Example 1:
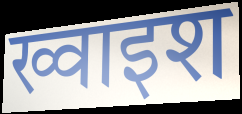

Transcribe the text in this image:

ख्वाइश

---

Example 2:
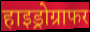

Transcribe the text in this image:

हाइड्रोग्राफर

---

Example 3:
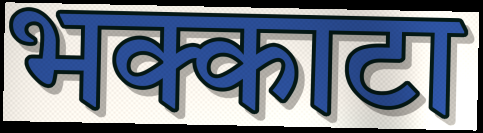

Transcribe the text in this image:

भक्काटा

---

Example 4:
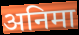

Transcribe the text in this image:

अनिमा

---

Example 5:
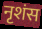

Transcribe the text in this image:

नृशंस